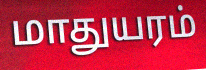
மாதுயரம்